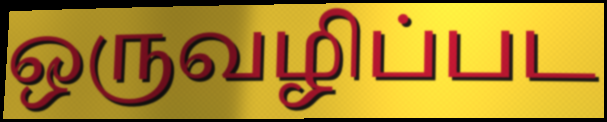
ஒருவழிப்பட